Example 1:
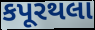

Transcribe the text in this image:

કપૂરથલા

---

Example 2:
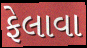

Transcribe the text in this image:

ફેલાવા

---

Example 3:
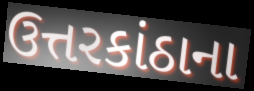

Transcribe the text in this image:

ઉત્તરકાંઠાના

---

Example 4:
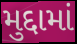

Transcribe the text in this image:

મુદ્દામાં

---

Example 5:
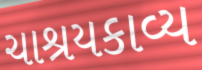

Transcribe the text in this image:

ચાશ્રયકાવ્ય